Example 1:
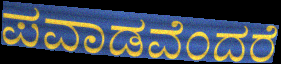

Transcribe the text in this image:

ಪವಾಡವೆಂದರೆ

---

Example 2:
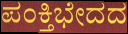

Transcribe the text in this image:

ಪಂಕ್ತಿಭೇದದ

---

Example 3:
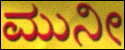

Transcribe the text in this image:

ಮುನೀ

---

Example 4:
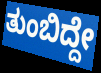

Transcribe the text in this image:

ತುಂಬಿದ್ದೇ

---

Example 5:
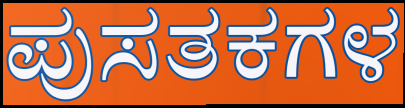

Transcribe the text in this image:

ಪುಸತಕಗಳ